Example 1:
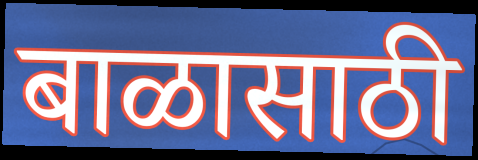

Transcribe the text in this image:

बाळासाठी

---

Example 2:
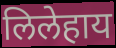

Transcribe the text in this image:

लिलेहाय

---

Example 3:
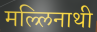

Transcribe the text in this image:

मल्लिनाथी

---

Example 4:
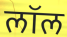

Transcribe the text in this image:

लॉल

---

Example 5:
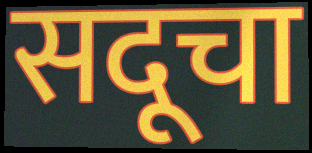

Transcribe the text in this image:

सदूचा